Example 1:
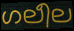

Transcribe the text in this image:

ഗലീല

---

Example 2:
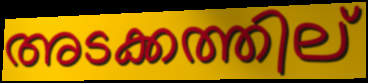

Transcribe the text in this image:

അടക്കത്തില്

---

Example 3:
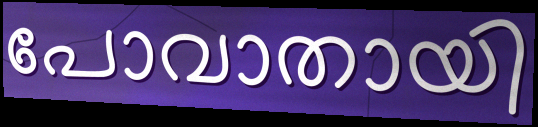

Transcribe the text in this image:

പോവാതായി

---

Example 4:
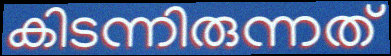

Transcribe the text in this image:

കിടന്നിരുന്നത്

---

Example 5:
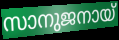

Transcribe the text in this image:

സാനുജനായ്